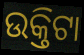
ଉକ୍ତିଟା